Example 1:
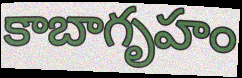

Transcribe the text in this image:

కాబాగృహం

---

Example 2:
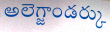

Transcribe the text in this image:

అలెగ్జాండర్కు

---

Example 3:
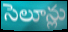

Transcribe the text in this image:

సెలూన్లు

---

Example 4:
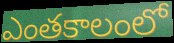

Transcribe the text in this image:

ఎంతకాలంలో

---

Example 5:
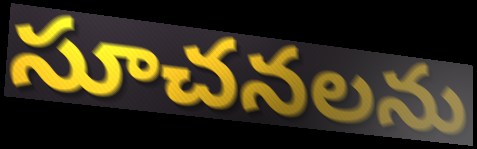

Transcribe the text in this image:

సూచనలను